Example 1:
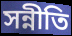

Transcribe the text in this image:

সন্নীতি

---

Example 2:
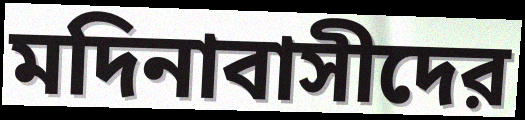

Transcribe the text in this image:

মদিনাবাসীদের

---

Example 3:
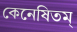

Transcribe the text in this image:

কেনেষিতম্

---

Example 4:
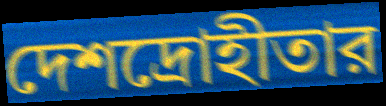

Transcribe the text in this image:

দেশদ্রোহীতার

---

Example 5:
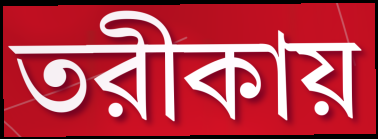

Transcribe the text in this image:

তরীকায়